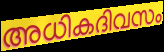
അധികദിവസം